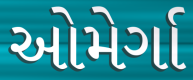
ઓમેર્ગા